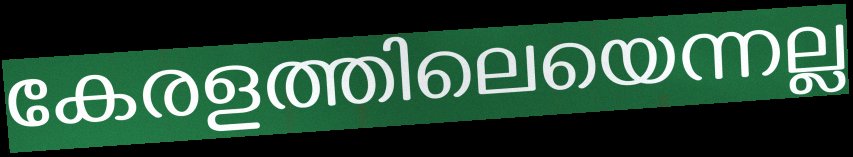
കേരളത്തിലെയെന്നല്ല